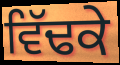
ਵਿੱਢਕੇ